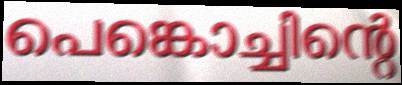
പെങ്കൊച്ചിന്റെ